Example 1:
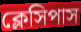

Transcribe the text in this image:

ক্লেসিপাস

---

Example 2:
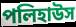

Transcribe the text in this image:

পলিহাউস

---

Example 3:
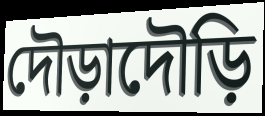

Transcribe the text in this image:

দৌড়াদৌড়ি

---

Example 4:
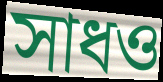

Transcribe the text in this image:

সাধও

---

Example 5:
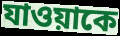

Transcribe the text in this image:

যাওয়াকে